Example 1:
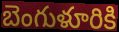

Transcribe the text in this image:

బెంగుళూరికి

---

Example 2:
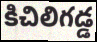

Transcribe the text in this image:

కిచిలిగడ్డ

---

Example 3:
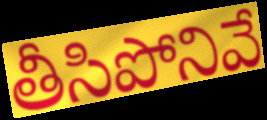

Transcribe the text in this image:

తీసిపోనివే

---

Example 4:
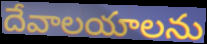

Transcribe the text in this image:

దేవాలయాలను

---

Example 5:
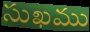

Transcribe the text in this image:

సుఖము